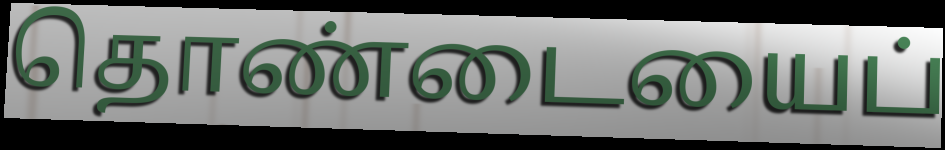
தொண்டையைப்